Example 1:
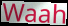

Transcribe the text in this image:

Waah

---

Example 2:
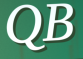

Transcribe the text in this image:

QB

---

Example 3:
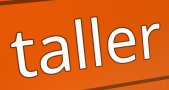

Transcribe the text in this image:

taller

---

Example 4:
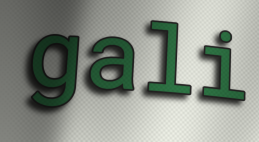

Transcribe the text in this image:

gali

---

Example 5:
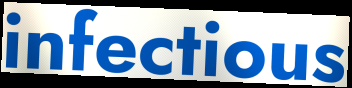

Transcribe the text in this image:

infectious